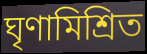
ঘৃণামিশ্রিত